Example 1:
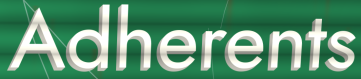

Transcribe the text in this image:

Adherents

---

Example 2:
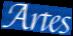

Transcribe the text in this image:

Artes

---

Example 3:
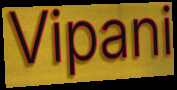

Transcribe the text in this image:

Vipani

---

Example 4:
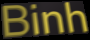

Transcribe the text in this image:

Binh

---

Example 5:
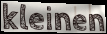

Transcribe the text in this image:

kleinen